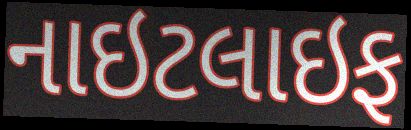
નાઇટલાઇફ